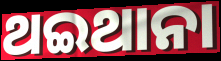
ଥଇଥାନା